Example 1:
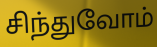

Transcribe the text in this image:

சிந்துவோம்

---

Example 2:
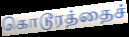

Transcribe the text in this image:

கொடூரத்தைச்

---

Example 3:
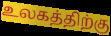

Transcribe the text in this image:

உலகத்திற்கு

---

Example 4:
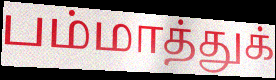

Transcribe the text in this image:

பம்மாத்துக்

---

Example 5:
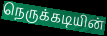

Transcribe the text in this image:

நெருக்கடியின்